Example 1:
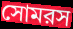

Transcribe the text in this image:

সোমরস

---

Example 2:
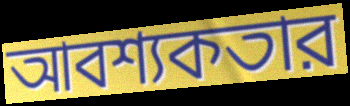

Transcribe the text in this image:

আবশ্যকতার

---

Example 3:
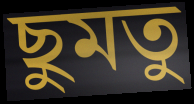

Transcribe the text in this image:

ছুমতু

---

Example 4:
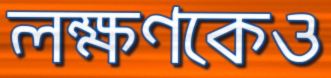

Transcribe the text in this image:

লক্ষণকেও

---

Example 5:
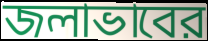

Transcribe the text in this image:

জলাভাবের